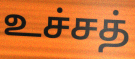
உச்சத்